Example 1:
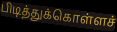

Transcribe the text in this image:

பிடித்துக்கொள்ளச்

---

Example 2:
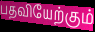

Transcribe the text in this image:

பதவியேற்கும்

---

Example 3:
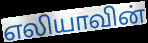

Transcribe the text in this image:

எலியாவின்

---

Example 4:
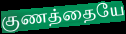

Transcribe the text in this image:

குணத்தையே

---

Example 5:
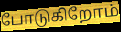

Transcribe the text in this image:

போடுகிறோம்